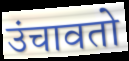
उंचावतो